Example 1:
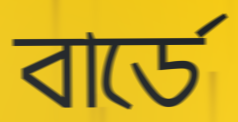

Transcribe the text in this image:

বার্ডে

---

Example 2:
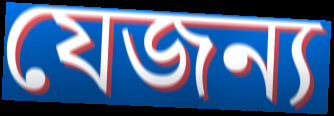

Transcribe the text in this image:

যেজন্য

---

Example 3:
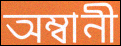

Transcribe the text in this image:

অম্বানী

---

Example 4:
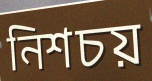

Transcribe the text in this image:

নিশচয়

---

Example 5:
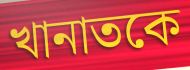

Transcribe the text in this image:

খানাতকে